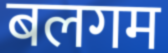
बलगम